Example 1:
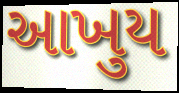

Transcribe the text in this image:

આખુય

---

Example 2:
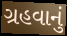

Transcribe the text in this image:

ગ્રહવાનું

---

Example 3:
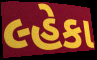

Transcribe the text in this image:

લ્હેકા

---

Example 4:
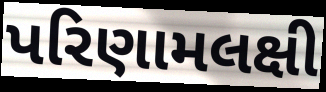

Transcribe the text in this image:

પરિણામલક્ષી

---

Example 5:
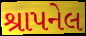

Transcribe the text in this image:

શ્રાપનેલ